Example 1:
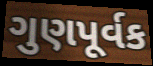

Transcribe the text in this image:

ગુણપૂર્વક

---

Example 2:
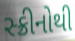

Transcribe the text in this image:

સ્ક્રીનોથી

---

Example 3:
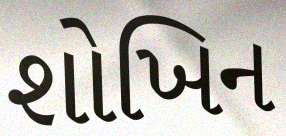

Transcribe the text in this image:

શોખિન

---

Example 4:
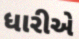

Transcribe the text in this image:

ધારીએ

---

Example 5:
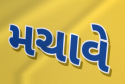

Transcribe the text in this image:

મચાવે